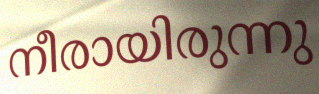
നീരായിരുന്നു